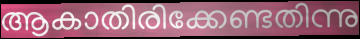
ആകാതിരിക്കേണ്ടതിന്നു